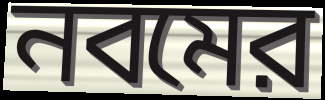
নবমের